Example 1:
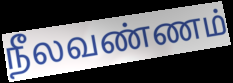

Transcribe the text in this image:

நீலவண்ணம்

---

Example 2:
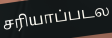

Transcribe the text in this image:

சரியாப்படல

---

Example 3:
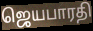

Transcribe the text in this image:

ஜெயபாரதி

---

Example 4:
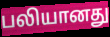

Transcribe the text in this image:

பலியானது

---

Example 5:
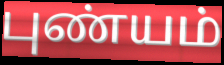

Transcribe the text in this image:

புண்யம்